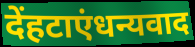
देंहटाएंधन्यवाद